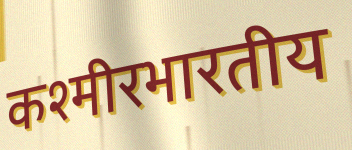
कश्मीरभारतीय